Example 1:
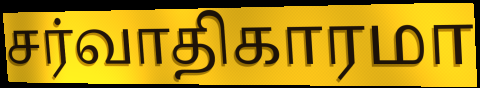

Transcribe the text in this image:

சர்வாதிகாரமா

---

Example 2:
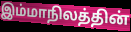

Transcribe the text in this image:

இம்மாநிலத்தின்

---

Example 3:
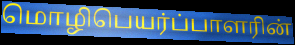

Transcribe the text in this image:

மொழிபெயர்ப்பாளரின்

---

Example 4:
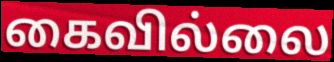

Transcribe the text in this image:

கைவில்லை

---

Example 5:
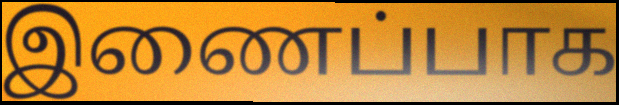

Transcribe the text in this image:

இணைப்பாக